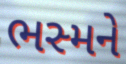
ભસ્મને